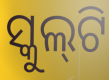
ସ୍କୁଲ୍‌ଟି